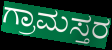
ಗ್ರಾಮಸ್ತರ